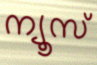
ന്യൂസ്